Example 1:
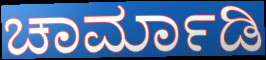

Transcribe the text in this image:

ಚಾರ್ಮಾಡಿ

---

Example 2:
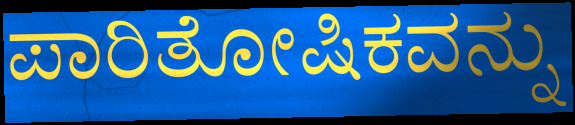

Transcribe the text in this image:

ಪಾರಿತೋಷಿಕವನ್ನು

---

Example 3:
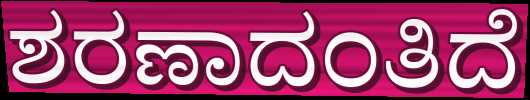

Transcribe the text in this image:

ಶರಣಾದಂತಿದೆ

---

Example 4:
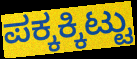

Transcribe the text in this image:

ಪಕ್ಕಕ್ಕಿಟ್ಟು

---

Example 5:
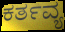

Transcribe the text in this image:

ಕರ್ತವ್ಯ